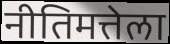
नीतिमत्तेला